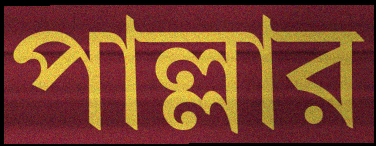
পাল্লার